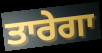
ਤਾਰੇਗਾ